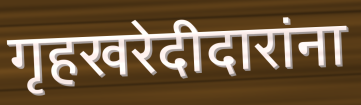
गृहखरेदीदारांना